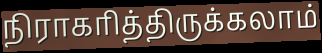
நிராகரித்திருக்கலாம்